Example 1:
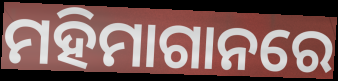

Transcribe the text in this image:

ମହିମାଗାନରେ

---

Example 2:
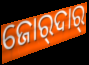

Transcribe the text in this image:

ଜୋର୍‍ଦାର୍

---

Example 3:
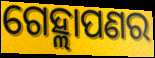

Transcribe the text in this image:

ଗେହ୍ଲାପଣର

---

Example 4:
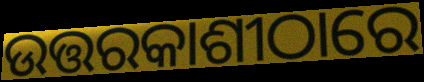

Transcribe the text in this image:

ଉତ୍ତରକାଶୀଠାରେ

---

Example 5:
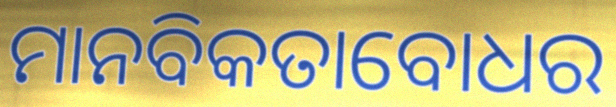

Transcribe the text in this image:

ମାନବିକତାବୋଧର